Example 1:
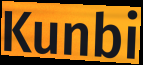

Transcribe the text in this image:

Kunbi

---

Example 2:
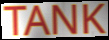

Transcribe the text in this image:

TANK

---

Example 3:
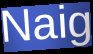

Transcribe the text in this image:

Naig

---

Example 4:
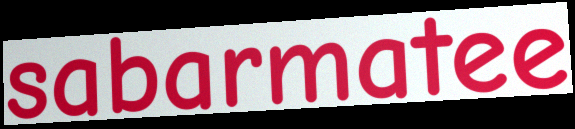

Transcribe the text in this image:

sabarmatee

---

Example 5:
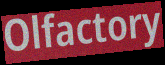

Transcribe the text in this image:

Olfactory